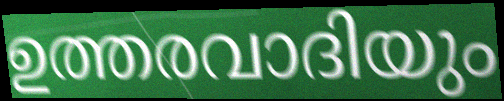
ഉത്തരവാദിയും